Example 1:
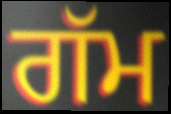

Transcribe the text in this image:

ਗੱਮ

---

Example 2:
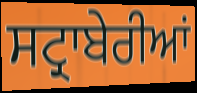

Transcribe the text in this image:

ਸਟ੍ਰਾਬੇਰੀਆਂ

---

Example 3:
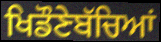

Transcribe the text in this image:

ਖਿਡੌਣੇਬੱਚਿਆਂ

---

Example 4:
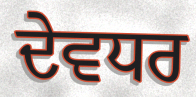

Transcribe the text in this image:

ਦੇਵਧਰ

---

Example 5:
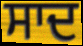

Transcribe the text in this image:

ਸਾਦ